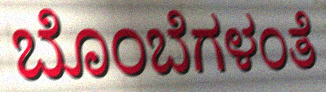
ಬೊಂಬೆಗಳಂತೆ